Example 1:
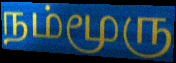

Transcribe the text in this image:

நம்மூரு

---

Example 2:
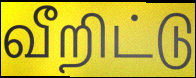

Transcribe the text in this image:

வீறிட்டு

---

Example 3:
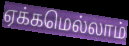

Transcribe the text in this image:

ஏக்கமெல்லாம்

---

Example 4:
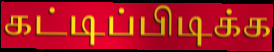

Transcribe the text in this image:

கட்டிப்பிடிக்க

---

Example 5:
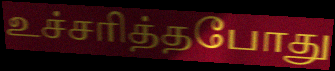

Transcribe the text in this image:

உச்சரித்தபோது